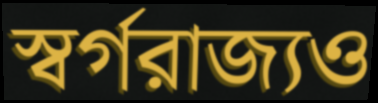
স্বর্গরাজ্যও